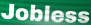
Jobless